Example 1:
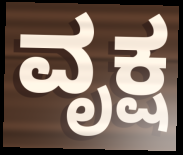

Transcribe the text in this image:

ವೃಕ್ಷ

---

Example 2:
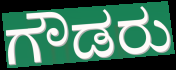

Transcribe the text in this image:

ಗೌಡರು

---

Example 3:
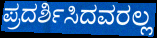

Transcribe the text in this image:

ಪ್ರದರ್ಶಿಸಿದವರಲ್ಲ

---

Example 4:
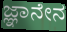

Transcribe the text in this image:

ಜ್ಞಾನೇನ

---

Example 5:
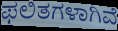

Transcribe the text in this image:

ಫಲಿತಗಳಾಗಿವೆ